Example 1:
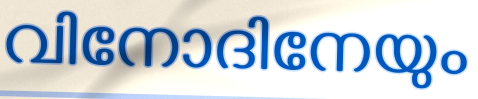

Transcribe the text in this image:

വിനോദിനേയും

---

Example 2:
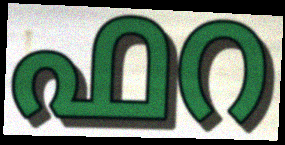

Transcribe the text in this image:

ഫറ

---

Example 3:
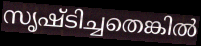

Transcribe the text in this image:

സൃഷ്ടിച്ചതെങ്കിൽ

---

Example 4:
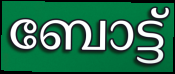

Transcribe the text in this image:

ബോട്ട്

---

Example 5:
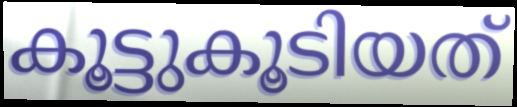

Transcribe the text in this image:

കൂട്ടുകൂടിയത്